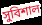
সুবিশাল